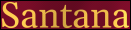
Santana